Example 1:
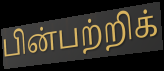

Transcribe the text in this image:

பின்பற்றிக்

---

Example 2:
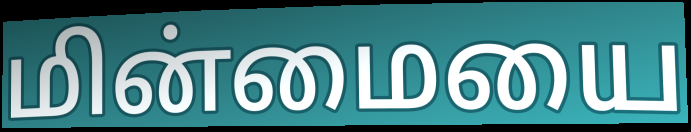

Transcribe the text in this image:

மின்மையை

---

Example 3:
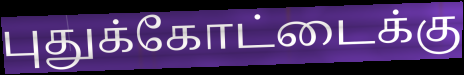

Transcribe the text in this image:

புதுக்கோட்டைக்கு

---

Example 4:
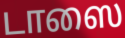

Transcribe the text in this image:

டாஸை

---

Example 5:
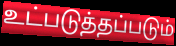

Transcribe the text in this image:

உட்படுத்தப்படும்